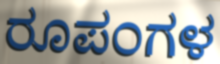
ರೂಪಂಗಳ